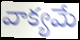
వాక్యమే